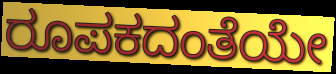
ರೂಪಕದಂತೆಯೇ